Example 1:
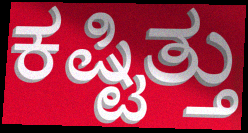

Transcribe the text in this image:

ಕಷ್ಟಿತ್ತು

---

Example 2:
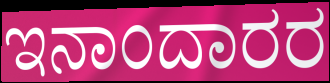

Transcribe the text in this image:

ಇನಾಂದಾರರ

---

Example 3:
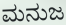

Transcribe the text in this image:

ಮನುಜ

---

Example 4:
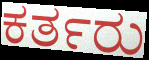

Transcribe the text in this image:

ಕರ್ತರು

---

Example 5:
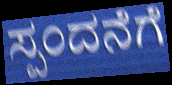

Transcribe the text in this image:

ಸ್ಪಂದನೆಗೆ